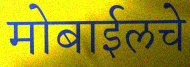
मोबाईलचे